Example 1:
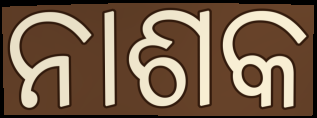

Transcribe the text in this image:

ନାଶକ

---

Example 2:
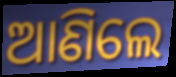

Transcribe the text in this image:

ଆଣିଲେ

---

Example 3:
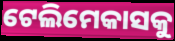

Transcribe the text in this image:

ଟେଲିମେକାସକୁ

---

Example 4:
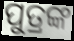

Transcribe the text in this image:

ପୁତ୍ରଙ୍କ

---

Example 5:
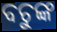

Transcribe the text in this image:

ବଚୁଙ୍କ